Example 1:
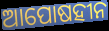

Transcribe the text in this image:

ଆପୋଷହୀନ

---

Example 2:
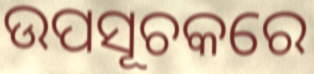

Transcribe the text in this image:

ଉପସୂଚକରେ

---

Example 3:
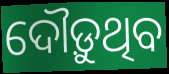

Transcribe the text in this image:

ଦୌଡ଼ୁଥିବ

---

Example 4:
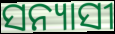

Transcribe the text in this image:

ସନ୍ଯାସୀ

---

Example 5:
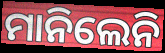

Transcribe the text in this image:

ମାନିଲେନି